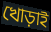
খোড়াই